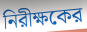
নিরীক্ষকের